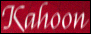
Kahoon